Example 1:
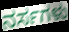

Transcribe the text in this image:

ನರ್ಸಗಳು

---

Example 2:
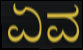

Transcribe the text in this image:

ಏವ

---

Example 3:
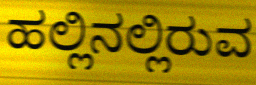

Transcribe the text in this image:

ಹಲ್ಲಿನಲ್ಲಿರುವ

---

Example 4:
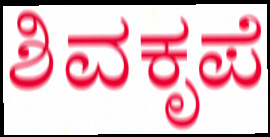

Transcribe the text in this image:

ಶಿವಕೃಪೆ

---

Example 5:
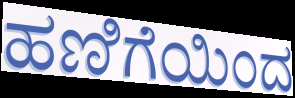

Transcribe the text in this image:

ಹಣಿಗೆಯಿಂದ